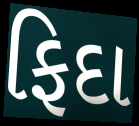
ફિદા